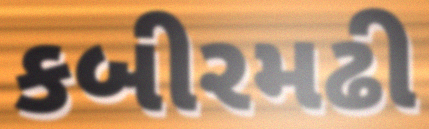
કબીરમઢી